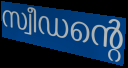
സ്വീഡന്റെ